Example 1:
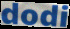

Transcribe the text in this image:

dodi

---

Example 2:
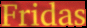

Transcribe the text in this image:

Fridas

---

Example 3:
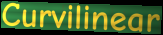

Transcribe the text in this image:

Curvilinear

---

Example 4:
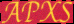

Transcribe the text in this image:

APXS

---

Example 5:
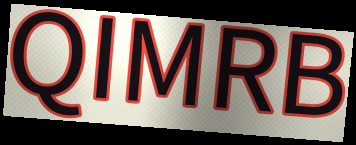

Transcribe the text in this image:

QIMRB